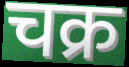
चक्र